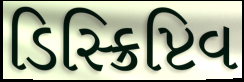
ડિસ્ક્રિપ્ટિવ